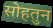
सोहतुन